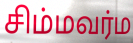
சிம்மவர்ம